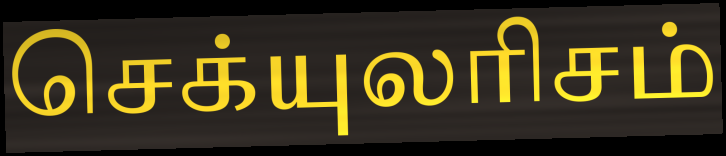
செக்யுலரிசம்